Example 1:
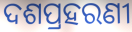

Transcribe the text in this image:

ଦଶପ୍ରହରଣୀ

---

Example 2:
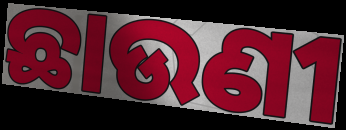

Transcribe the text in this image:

ଛାଉଣୀ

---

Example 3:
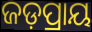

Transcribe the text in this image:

ଜଡ଼ପ୍ରାୟ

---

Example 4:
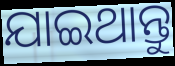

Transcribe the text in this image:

ଯାଇଥାନ୍ତୁ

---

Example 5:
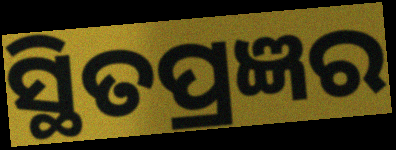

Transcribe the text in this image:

ସ୍ଥିତପ୍ରଜ୍ଞର